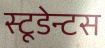
स्टूडेन्टस